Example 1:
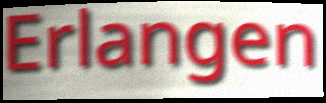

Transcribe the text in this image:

Erlangen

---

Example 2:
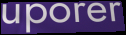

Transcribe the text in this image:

uporer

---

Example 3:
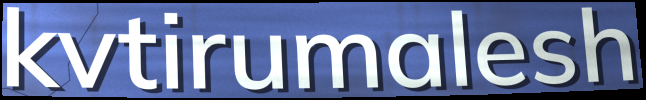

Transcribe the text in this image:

kvtirumalesh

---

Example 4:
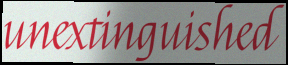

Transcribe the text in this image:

unextinguished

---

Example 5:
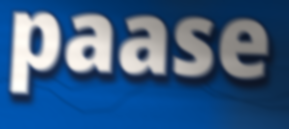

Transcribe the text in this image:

paase